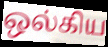
ஒல்கிய